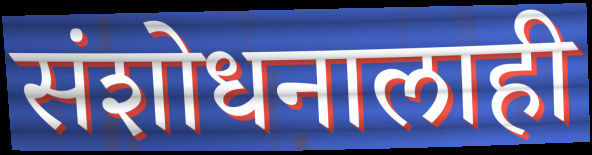
संशोधनालाही